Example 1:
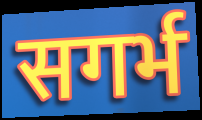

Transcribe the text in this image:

सगर्भ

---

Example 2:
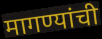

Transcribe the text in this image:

मागण्यांची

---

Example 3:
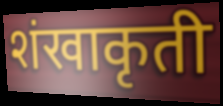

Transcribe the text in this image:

शंखाकृती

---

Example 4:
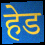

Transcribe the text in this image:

हेड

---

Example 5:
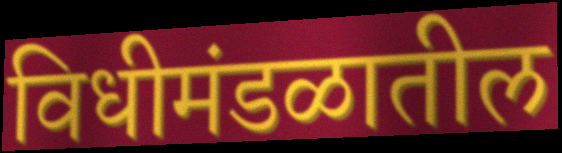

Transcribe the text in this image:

विधीमंडळातील